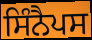
ਸਿੰਨੈਪਸ